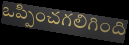
ఒప్పించగలిగింది